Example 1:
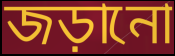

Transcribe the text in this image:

জড়ানো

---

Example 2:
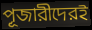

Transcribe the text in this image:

পূজারীদেরই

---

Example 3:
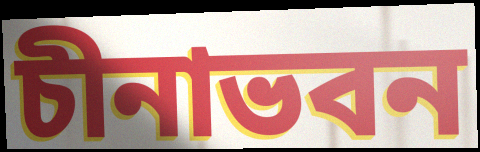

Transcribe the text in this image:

চীনাভবন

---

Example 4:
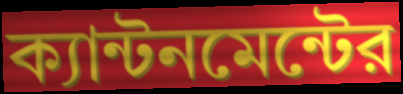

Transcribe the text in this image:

ক্যান্টনমেন্টের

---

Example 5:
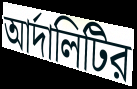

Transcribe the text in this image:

আর্দালিটির